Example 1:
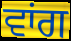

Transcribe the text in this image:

ਵਾਂਗ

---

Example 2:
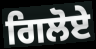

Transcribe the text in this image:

ਗਿਲੋਏ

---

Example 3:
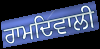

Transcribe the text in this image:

ਰਾਮਦਿਵਾਲੀ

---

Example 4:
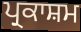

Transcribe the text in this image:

ਪ੍ਰਕਾਸ਼ਮ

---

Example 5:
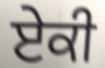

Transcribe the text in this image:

ਏਕੀ